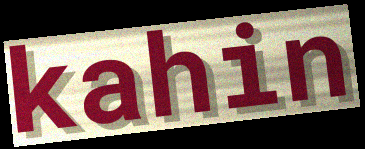
kahin